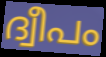
ദ്വീപം